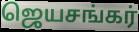
ஜெயசங்கர்